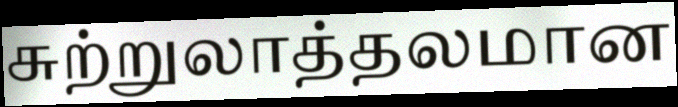
சுற்றுலாத்தலமான